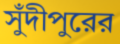
সুঁদীপুরের